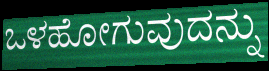
ಒಳಹೋಗುವುದನ್ನು